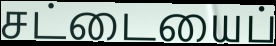
சட்டையைப்